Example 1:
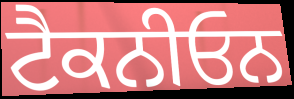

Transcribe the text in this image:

ਟੈਕਨੀਓਨ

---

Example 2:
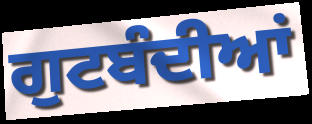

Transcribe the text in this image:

ਗੁਟਬੰਦੀਆਂ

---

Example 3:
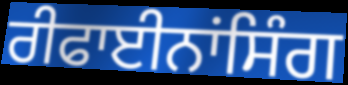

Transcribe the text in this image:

ਰੀਫਾਈਨਾਂਸਿੰਗ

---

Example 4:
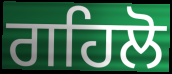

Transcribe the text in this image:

ਗਹਿਲੋ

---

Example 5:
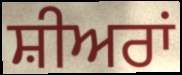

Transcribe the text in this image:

ਸ਼ੀਅਰਾਂ